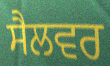
ਸੈਲਵਰ